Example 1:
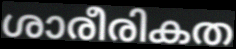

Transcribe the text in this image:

ശാരീരികത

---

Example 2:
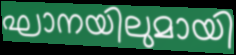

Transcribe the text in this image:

ഘാനയിലുമായി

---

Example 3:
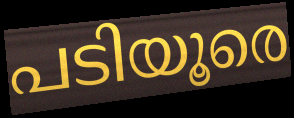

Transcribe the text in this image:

പടിയൂരെ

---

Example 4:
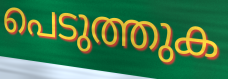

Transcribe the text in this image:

പെടുത്തുക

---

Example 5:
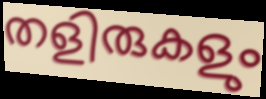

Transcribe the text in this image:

തളിരുകളും